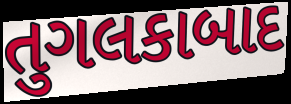
તુગલકાબાદ